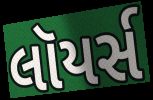
લૉયર્સ